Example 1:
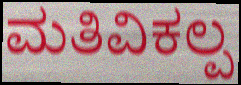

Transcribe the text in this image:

ಮತಿವಿಕಲ್ಪ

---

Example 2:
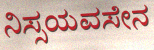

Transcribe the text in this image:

ನಿಸ್ಸಯವಸೇನ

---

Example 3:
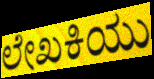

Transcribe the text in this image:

ಲೇಖಕಿಯು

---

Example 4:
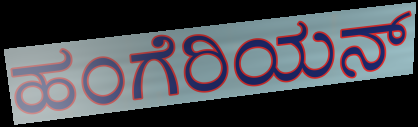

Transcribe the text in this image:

ಹಂಗೆರಿಯನ್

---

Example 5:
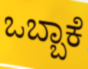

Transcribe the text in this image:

ಒಬ್ಬಾಕೆ